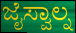
ಜೈಸ್ವಾಲ್ನ